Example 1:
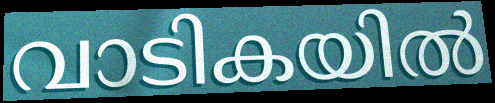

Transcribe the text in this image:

വാടികയിൽ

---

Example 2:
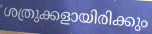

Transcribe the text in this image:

ശത്രുക്കളായിരിക്കും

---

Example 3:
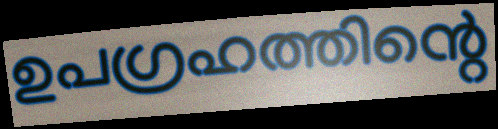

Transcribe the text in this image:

ഉപഗ്രഹത്തിന്റെ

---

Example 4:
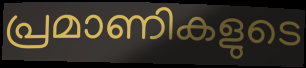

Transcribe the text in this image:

പ്രമാണികളുടെ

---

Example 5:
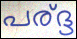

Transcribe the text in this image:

പര്ദ്ദ